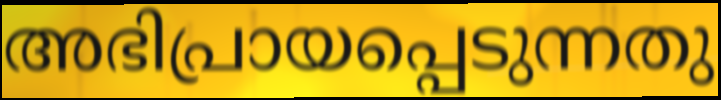
അഭിപ്രായപ്പെടുന്നതു